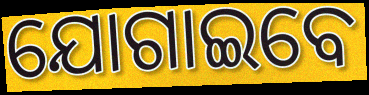
ଯୋଗାଇବେ